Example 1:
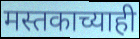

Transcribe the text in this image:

मस्तकाच्याही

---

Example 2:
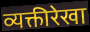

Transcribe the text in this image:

व्यक्तीरेखा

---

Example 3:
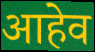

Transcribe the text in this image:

आहेव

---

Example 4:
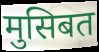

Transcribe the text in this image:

मुसिबत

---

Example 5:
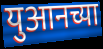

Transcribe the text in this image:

युआनच्या